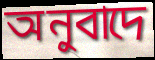
অনুবাদে